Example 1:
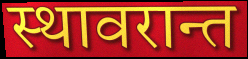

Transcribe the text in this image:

स्थावरान्त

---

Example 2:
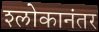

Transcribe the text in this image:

श्लोकानंतर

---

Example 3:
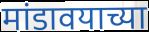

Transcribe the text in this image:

मांडावयाच्या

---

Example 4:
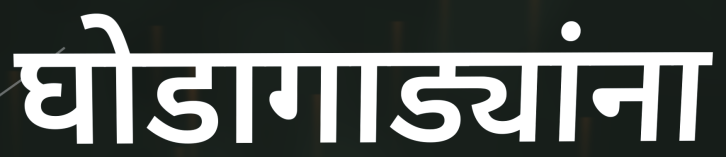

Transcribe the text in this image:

घोडागाड्यांना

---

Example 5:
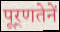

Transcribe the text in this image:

पूर्णतेनें